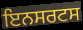
ਇਨਸਰਟਸ